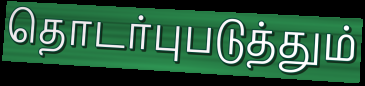
தொடர்புபடுத்தும்